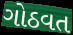
ગોઠવત